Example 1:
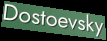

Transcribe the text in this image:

Dostoevsky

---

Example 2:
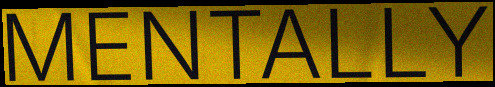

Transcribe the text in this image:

MENTALLY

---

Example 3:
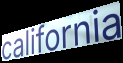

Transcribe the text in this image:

california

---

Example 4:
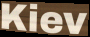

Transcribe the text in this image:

Kiev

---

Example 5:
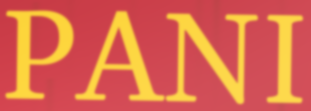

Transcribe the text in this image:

PANI